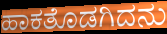
ಹಾಕತೊಡಗಿದನು